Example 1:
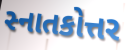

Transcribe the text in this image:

સ્નાતકોત્તર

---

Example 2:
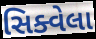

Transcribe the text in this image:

સિક્વેલા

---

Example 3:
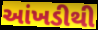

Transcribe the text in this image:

આંખડીથી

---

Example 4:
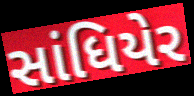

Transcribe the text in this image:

સાંધિયેર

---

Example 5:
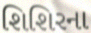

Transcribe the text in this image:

શિશિરના